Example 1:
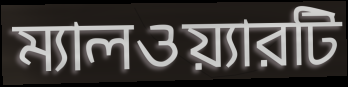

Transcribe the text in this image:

ম্যালওয়্যারটি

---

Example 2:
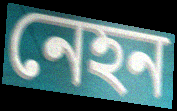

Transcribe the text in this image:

নেহন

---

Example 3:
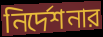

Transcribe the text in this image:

নির্দেশনার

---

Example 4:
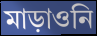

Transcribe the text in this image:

মাড়াওনি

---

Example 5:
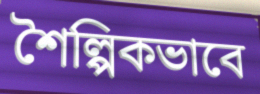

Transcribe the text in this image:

শৈল্পিকভাবে